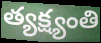
త్యక్ష్యంతి